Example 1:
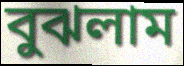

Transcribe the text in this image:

বুঝলাম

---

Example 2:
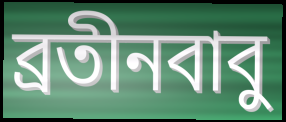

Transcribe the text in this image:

ব্রতীনবাবু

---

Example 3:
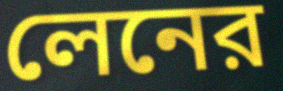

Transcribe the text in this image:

লেনের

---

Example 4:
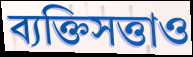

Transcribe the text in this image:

ব্যক্তিসত্তাও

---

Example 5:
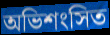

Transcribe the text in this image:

অভিশংসিত